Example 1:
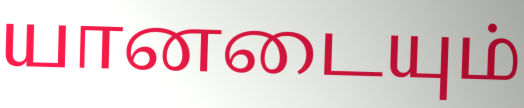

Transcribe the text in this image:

யானடையும்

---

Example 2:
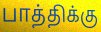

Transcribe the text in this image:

பாத்திக்கு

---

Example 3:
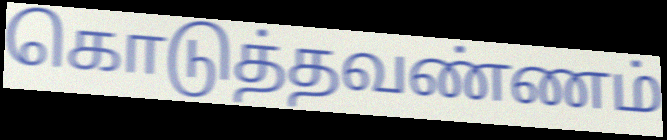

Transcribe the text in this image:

கொடுத்தவண்ணம்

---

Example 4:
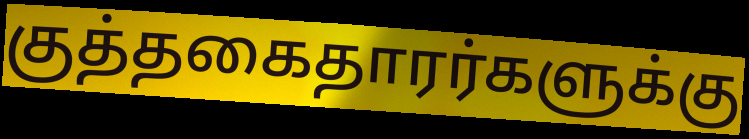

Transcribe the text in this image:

குத்தகைதாரர்களுக்கு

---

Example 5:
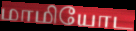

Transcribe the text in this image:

மாமியோட